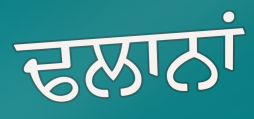
ਢਲਾਨਾਂ